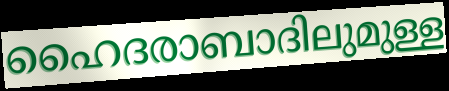
ഹൈദരാബാദിലുമുള്ള